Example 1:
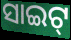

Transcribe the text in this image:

ସାଇଟ୍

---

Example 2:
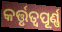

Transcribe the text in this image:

କର୍ତ୍ତୃତ୍ୱପୂର୍ଣ୍ଣ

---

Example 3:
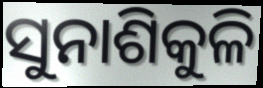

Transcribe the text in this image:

ସୁନାଶିକୁଳି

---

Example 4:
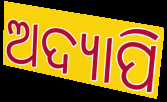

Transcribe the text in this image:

ଅଦ୍ୟାପି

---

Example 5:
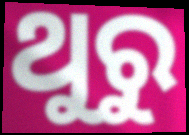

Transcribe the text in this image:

ଥୁରୁ